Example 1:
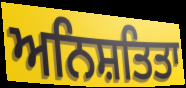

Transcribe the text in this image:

ਅਨਿਸ਼ਤਿਤਾ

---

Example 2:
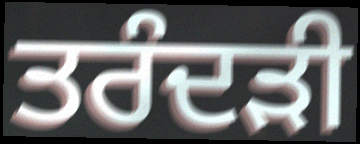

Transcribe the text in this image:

ਤਰੰਦੜੀ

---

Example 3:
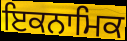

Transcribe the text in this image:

ਇਕਨਾਮਿਕ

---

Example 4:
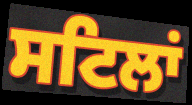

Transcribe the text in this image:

ਸਟਿਲਾਂ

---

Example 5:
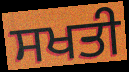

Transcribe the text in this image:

ਸਖਤੀ